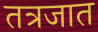
तत्रजात